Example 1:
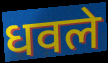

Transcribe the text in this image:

धवले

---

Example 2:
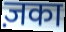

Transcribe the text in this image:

ज़का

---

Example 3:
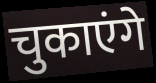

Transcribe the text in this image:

चुकाएंगे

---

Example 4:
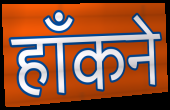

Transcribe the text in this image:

हाँकने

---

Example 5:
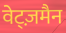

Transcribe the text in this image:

वेट्ज़मैन